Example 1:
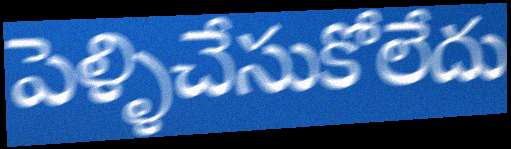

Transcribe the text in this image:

పెళ్ళిచేసుకోలేదు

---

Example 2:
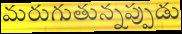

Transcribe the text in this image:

మరుగుతున్నప్పుడు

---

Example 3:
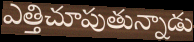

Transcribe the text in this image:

ఎత్తిచూపుతున్నాడు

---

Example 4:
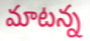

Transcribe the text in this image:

మాటన్న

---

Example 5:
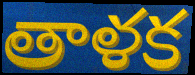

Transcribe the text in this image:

తాళక